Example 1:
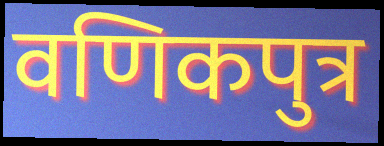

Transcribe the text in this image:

वणिकपुत्र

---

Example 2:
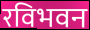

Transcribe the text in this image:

रविभवन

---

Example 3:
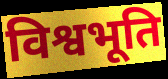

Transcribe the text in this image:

विश्वभूति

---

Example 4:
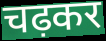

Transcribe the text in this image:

चढ़कर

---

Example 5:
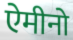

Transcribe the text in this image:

ऐमीनो